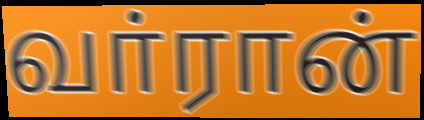
வர்ரான்